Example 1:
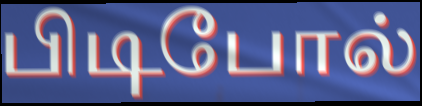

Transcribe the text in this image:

பிடிபோல்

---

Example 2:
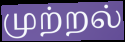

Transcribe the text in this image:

முற்றல்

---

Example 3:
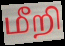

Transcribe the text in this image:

மீறி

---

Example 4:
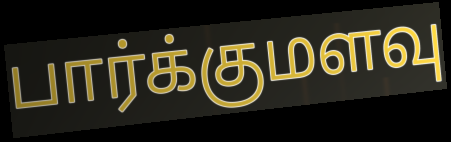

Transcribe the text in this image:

பார்க்குமளவு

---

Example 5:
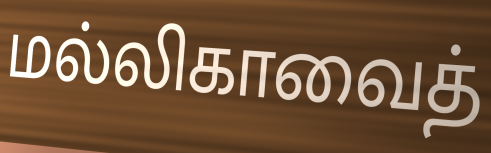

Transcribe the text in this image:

மல்லிகாவைத்